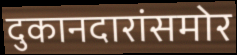
दुकानदारांसमोर